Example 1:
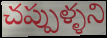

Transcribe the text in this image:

చప్పుళ్ళని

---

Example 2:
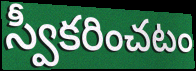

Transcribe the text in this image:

స్వీకరించటం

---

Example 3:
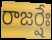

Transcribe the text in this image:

రాజర్షేః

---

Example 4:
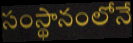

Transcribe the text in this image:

సంస్థానంలోనే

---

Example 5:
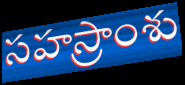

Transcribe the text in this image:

సహస్రాంశు